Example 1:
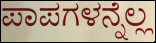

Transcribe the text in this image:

ಪಾಪಗಳನ್ನೆಲ್ಲ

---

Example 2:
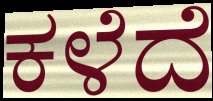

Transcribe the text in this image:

ಕಳೆದೆ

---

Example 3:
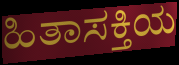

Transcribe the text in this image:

ಹಿತಾಸಕ್ತಿಯ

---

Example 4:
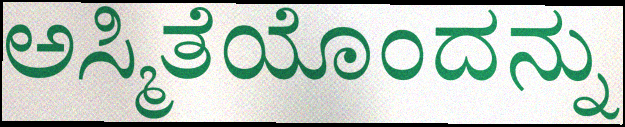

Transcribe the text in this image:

ಅಸ್ಮಿತೆಯೊಂದನ್ನು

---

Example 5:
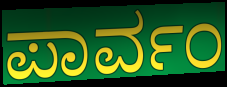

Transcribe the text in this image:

ಪಾರ್ವಂ